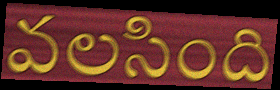
వలసింది